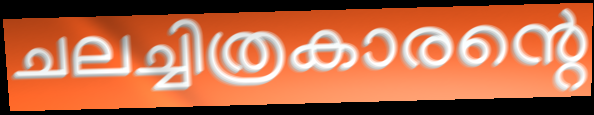
ചലച്ചിത്രകാരന്റെ